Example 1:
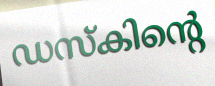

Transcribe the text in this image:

ഡസ്കിന്റെ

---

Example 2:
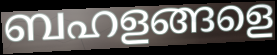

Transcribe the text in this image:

ബഹളങ്ങളെ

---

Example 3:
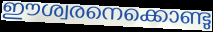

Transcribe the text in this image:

ഈശ്വരനെക്കൊണ്ടു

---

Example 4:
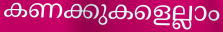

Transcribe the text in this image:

കണക്കുകളെല്ലാം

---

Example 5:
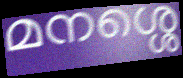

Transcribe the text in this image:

മനശ്ശെ